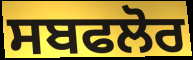
ਸਬਫਲੋਰ